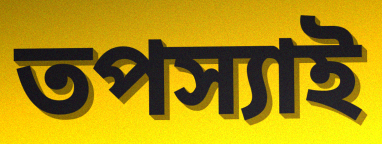
তপস্যাই